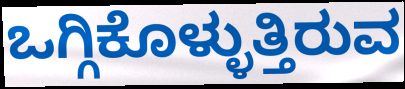
ಒಗ್ಗಿಕೊಳ್ಳುತ್ತಿರುವ